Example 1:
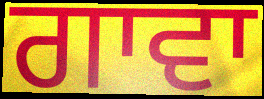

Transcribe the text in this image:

ਗਾਵਾ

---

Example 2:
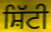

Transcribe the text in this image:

ਸ਼ਿੱਟੀ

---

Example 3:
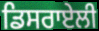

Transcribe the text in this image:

ਡਿਸਰਾਏਲੀ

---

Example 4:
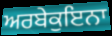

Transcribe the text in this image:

ਅਰਬੇਕੁਇਨਾ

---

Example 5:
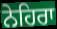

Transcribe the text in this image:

ਨੇਹਿਰਾ